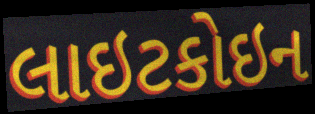
લાઇટકોઇન